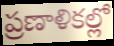
ప్రణాళికల్లో